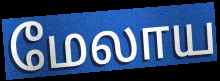
மேலாய